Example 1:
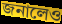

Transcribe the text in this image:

জনালেও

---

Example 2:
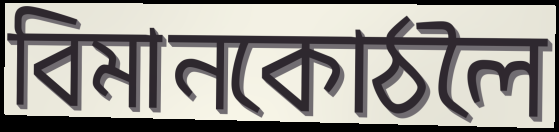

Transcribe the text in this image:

বিমানকোঠলৈ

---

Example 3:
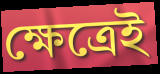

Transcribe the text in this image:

ক্ষেত্ৰেই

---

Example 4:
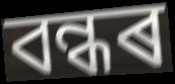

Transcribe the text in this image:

বন্ধৰ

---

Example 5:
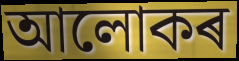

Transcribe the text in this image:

আলোকৰ